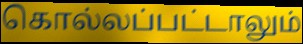
கொல்லப்பட்டாலும்